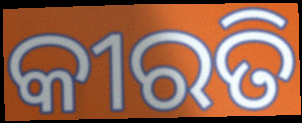
କୀରତି